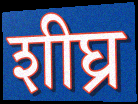
शीघ्र